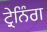
ਟ੍ਰੇਨਿੰਗ